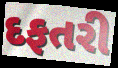
દફતરી